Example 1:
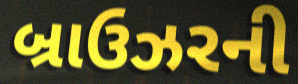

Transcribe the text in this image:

બ્રાઉઝરની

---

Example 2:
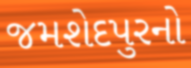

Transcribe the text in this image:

જમશેદપુરનો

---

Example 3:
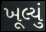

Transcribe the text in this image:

ખૂલ્યું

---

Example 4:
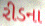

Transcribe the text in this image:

રીડના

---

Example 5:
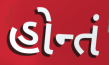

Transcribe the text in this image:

હોન્તં